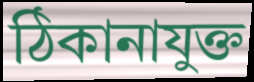
ঠিকানাযুক্ত